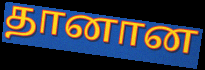
தானான